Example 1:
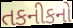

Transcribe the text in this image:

તકનીકનો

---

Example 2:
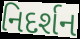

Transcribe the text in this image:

નિદર્શન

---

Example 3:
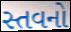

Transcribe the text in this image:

સ્તવનો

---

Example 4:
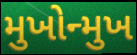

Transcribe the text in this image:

મુખોન્મુખ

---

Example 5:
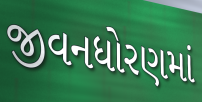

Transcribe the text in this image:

જીવનધોરણમાં